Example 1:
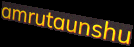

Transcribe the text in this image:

amrutaunshu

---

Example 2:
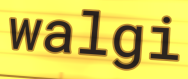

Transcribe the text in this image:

walgi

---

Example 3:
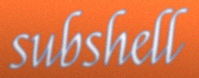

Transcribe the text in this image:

subshell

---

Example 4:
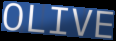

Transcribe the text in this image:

OLIVE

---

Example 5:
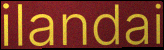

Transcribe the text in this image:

ilandai